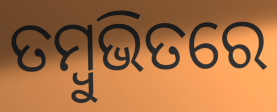
ତମ୍ବୁଭିତରେ